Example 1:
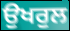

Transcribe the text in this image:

ਉਖਰੁਲ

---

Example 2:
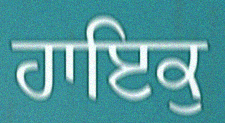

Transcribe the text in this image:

ਹਾਇਕੁ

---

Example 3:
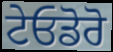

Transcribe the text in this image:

ਟੇਓਡੋਰੋ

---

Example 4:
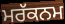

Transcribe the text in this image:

ਮਰੱਕਨਮ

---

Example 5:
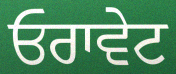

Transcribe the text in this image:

ਓਰਾਵੇਟ